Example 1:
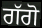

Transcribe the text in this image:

ਗੱਗੋ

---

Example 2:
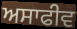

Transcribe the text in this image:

ਅਸਾਫੀਵ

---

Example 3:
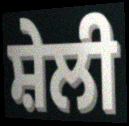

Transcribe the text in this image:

ਸ਼ੇਲੀ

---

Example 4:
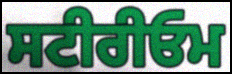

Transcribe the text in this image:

ਸਟੀਰੀਓਮ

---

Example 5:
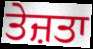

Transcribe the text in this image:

ਤੇਜ਼ਤਾ